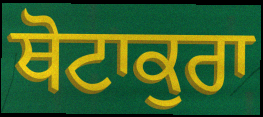
ਥੋਟਾਕੁਰਾ